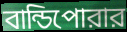
বান্ডিপোরার